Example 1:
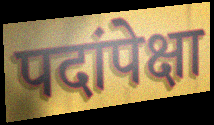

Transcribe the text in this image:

पदांपेक्षा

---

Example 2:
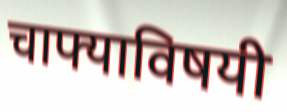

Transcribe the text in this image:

चाफ्याविषयी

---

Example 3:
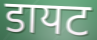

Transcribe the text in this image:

डायट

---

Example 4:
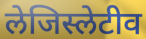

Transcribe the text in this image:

लेजिस्लेटीव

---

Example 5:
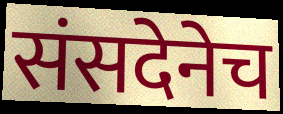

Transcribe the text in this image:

संसदेनेच